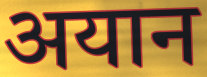
अयान